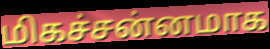
மிகச்சன்னமாக